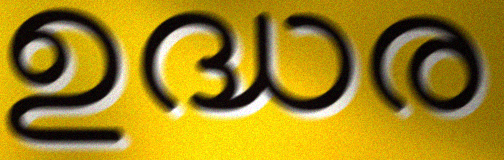
ഉദ്ധര